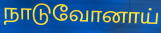
நாடுவோனாய்